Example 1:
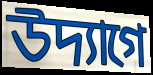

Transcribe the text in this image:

উদ্যাগে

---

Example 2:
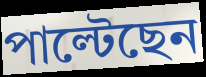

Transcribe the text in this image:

পাল্টেছেন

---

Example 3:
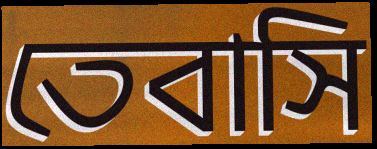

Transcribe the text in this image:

তেবাসি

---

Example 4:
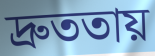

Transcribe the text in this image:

দ্রুততায়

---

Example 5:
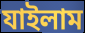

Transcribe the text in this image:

যাইলাম